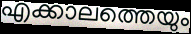
എക്കാലത്തെയും